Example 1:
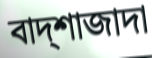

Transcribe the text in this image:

বাদ্শাজাদা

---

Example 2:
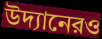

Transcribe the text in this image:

উদ্যানেরও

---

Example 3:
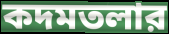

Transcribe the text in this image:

কদমতলার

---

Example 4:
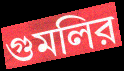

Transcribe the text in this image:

গুমলির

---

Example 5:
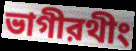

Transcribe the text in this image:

ভাগীরথীং